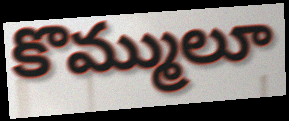
కొమ్ములూ